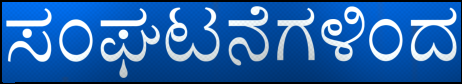
ಸಂಘಟನೆಗಳಿಂದ